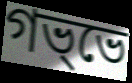
গভ্ভে